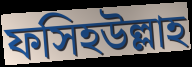
ফসিহউল্লাহ